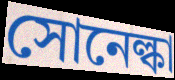
সোনেল্কা